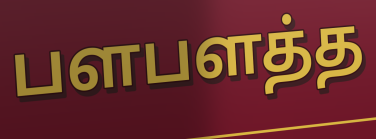
பளபளத்த